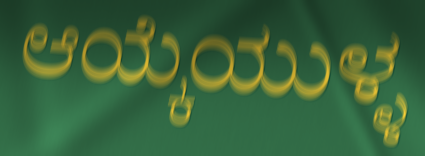
ಆಯ್ಕೆಯುಳ್ಳ